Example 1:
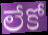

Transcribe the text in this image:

లేకో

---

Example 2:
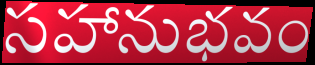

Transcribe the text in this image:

సహానుభవం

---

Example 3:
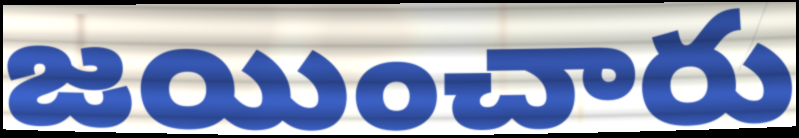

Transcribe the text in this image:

జయించారు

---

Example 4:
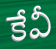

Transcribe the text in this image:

కేవీ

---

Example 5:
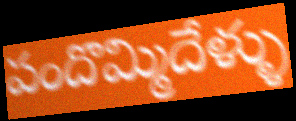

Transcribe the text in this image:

పందొమ్మిదేళ్ళు